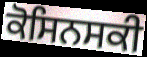
ਕੋਸਿਨਸਕੀ